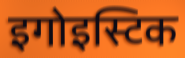
इगोइस्टिक